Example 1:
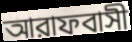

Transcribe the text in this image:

আরাফবাসী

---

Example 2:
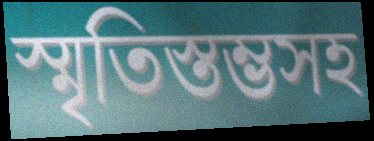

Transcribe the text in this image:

স্মৃতিস্তম্ভসহ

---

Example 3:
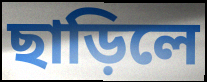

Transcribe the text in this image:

ছাড়িলে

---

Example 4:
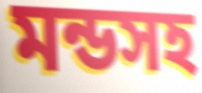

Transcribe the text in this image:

মন্ডসহ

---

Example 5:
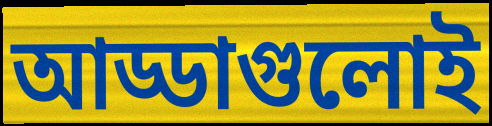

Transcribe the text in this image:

আড্ডাগুলোই